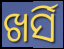
ଖର୍ସି